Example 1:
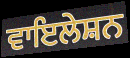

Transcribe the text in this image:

ਵਾਇਲੇਸ਼ਨ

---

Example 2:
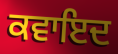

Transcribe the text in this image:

ਕਵਾਇਦ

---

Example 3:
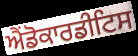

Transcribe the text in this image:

ਐਂਡੋਕਾਰਡੀਟਿਸ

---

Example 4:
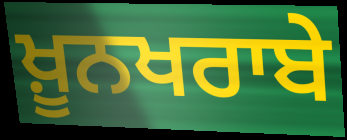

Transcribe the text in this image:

ਖ਼ੂਨਖਰਾਬੇ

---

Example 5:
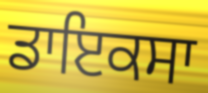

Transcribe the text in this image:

ਡਾਇਕਸਾ